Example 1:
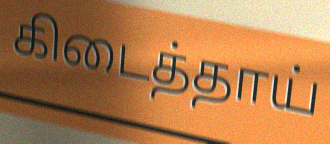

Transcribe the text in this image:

கிடைத்தாய்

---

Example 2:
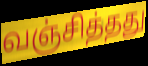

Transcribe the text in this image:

வஞ்சித்தது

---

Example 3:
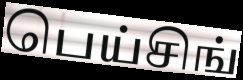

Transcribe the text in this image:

பெய்சிங்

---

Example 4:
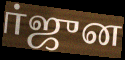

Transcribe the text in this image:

ர்ஜுன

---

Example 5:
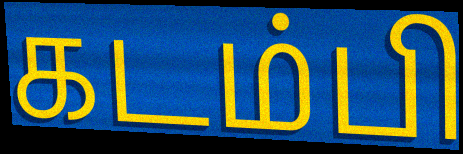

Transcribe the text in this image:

கடம்பி